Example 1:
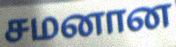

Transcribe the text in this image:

சமனான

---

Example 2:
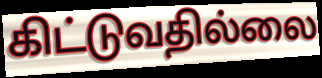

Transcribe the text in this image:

கிட்டுவதில்லை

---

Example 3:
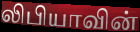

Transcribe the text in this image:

லிபியாவின்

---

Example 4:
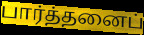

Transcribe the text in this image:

பார்த்தனைப்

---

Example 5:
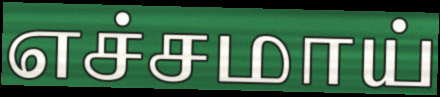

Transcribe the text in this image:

எச்சமாய்